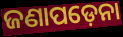
ଜଣାପଡ଼େନା